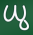
ധു